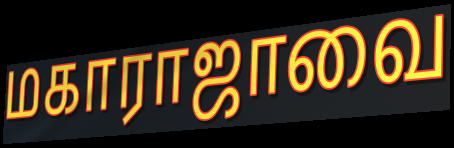
மகாராஜாவை